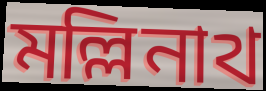
মল্লিনাথ